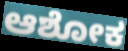
ಆಶೋಕ